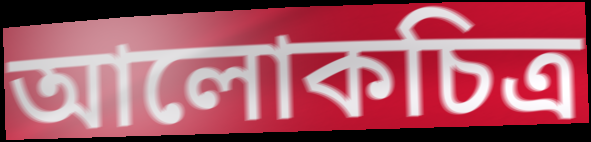
আলোকচিত্ৰ